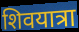
शिवयात्रा